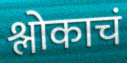
श्लोकाचं